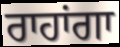
ਰਾਹਾਂਗਾ